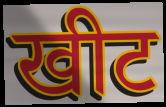
खीट